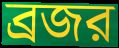
ব্রজর